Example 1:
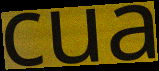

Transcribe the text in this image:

cua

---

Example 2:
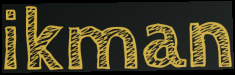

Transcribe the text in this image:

ikman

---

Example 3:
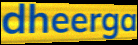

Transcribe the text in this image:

dheerga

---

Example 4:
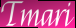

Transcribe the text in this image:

Tmari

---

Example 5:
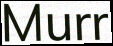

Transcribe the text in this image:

Murr